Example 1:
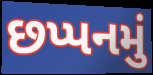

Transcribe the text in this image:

છપ્પનમું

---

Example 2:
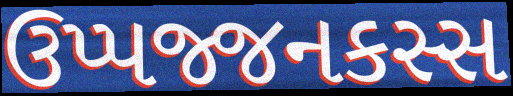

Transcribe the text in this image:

ઉપ્પજ્જનકસ્સ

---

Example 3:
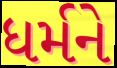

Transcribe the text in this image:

ધર્મને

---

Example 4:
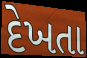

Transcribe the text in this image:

દેખતા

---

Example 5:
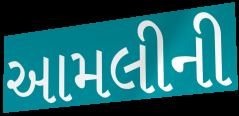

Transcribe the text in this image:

આમલીની